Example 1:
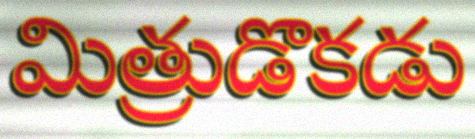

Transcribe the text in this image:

మిత్రుడొకడు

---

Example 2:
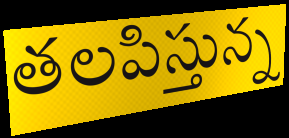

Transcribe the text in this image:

తలపిస్తున్న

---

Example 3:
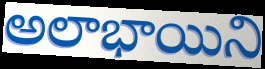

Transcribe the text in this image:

అలాభాయిని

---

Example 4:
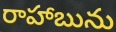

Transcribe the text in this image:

రాహాబును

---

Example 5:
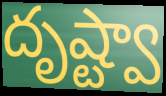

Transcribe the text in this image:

దృష్ట్వా